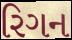
રિગન